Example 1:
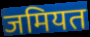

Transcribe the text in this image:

जमियत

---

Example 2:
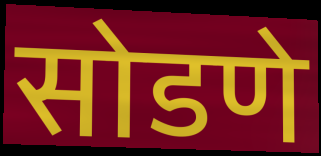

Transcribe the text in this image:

सोडणे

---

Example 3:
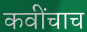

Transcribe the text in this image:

कवींचाच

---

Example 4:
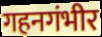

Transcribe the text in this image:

गहनगंभीर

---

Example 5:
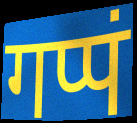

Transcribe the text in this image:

गप्पं